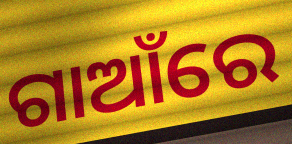
ଗାଆଁରେ